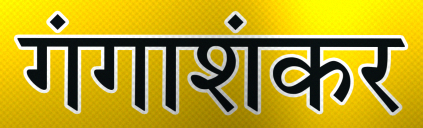
गंगाशंकर